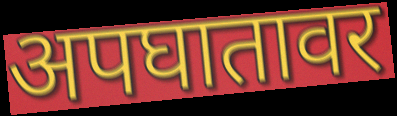
अपघातावर